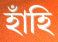
হাঁহি